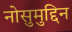
नोसुमुद्दिन